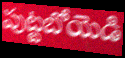
పుట్టబోయెడి